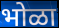
भोळा